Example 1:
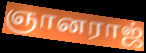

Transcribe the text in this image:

ஞானராஜ்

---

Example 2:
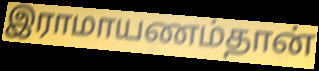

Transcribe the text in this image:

இராமாயணம்தான்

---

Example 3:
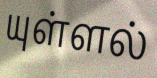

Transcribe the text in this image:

யுள்ளல்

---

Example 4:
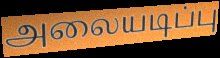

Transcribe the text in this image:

அலையடிப்பு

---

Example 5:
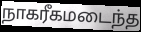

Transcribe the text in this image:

நாகரீகமடைந்த